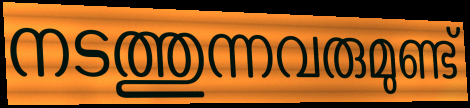
നടത്തുന്നവരുമുണ്ട്